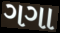
ગગા